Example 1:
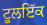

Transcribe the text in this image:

ਟੂਲਇੱਕ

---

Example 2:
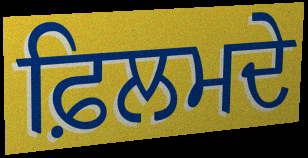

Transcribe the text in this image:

ਫ਼ਿਲਮਦੇ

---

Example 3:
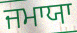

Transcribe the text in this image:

ਜਮਾਯਾ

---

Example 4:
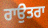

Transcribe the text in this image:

ਰਾਉਤਰਾ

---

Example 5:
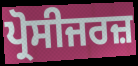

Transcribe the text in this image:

ਪ੍ਰੋਸੀਜਰਜ਼